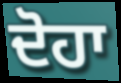
ਦੋਹਾ